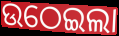
ଉଠେଇଲା